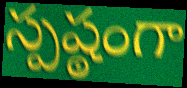
స్పష్ఠంగా